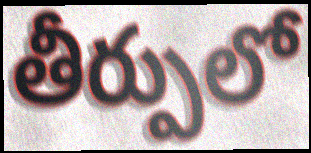
తీర్పులో